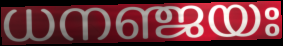
ധനഞ്ജയഃ